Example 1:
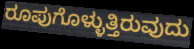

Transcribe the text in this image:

ರೂಪುಗೊಳ್ಳುತ್ತಿರುವುದು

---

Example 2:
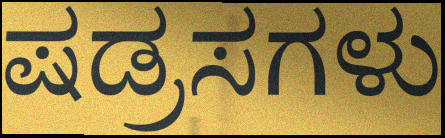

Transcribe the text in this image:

ಷಡ್ರಸಗಳು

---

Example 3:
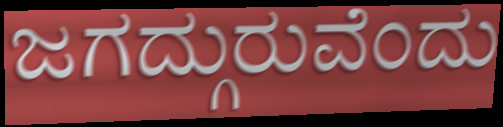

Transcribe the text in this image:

ಜಗದ್ಗುರುವೆಂದು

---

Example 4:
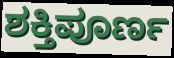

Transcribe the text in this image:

ಶಕ್ತಿಪೂರ್ಣ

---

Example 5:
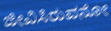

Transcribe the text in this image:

ಜೀವಿಸಿರುವನೋ